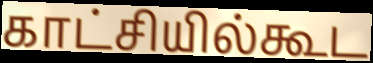
காட்சியில்கூட